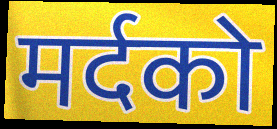
मर्दको